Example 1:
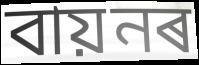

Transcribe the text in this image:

বায়নৰ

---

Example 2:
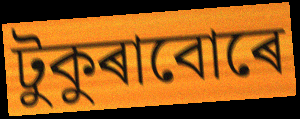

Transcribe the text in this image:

টুকুৰাবোৰে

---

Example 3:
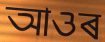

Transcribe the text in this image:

আওৰ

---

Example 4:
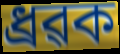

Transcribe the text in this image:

ধ্ৰৱক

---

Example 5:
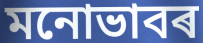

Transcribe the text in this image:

মনোভাবৰ